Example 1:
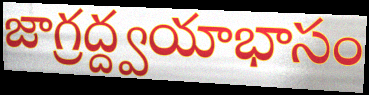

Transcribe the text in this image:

జాగ్రద్ద్వయాభాసం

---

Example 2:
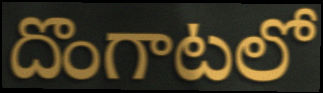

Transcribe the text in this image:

దొంగాటలో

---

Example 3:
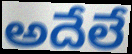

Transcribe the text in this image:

అదేలే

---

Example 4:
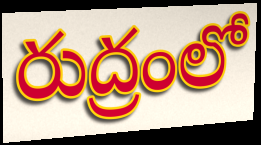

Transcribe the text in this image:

రుద్రంలో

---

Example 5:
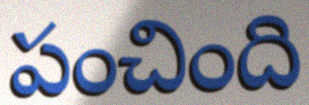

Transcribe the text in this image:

పంచింది